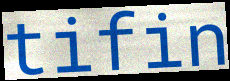
tifin